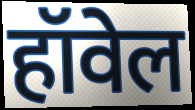
हॉवेल